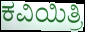
ಕವಿಯಿತ್ರಿ